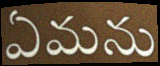
ఏమను